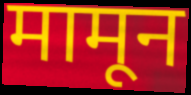
मामून